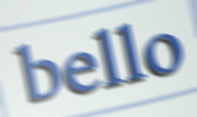
bello